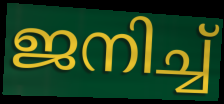
ജനിച്ച്